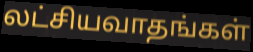
லட்சியவாதங்கள்